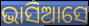
ଭାସିଆସେ